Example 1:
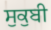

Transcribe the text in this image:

ਸੁਕੁਬੀ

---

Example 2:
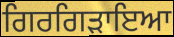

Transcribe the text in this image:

ਗਿਰਗਿੜਾਇਆ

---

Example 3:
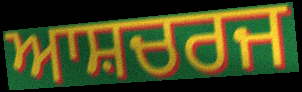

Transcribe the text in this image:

ਆਸ਼ਚਰਜ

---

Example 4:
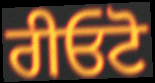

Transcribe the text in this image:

ਰੀਓਟੋ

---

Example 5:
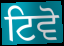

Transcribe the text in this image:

ਟਿਵੋ